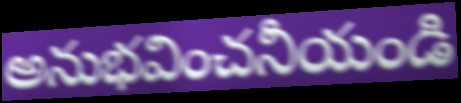
అనుభవించనీయండి